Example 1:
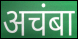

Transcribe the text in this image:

अचंबा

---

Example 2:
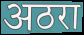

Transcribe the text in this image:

अठरा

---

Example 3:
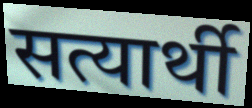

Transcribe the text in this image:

सत्यार्थी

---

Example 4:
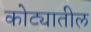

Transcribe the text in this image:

कोट्यातील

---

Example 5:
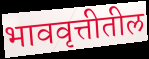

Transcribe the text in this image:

भाववृत्तीतील